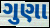
ગુણા